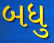
બધુ